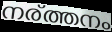
നര്ത്തനം